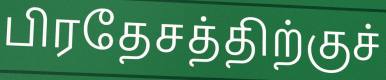
பிரதேசத்திற்குச்